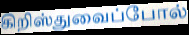
கிறிஸ்துவைப்போல்